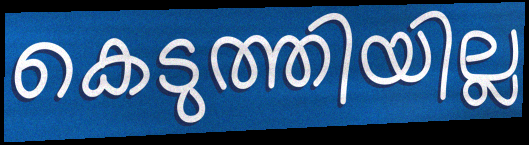
കെടുത്തിയില്ല